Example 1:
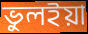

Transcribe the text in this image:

ভুলইয়া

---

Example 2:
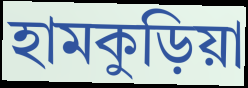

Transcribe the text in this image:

হামকুড়িয়া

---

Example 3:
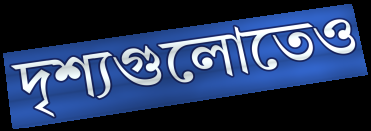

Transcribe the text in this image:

দৃশ্যগুলোতেও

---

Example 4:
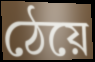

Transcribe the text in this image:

ঠেয়ে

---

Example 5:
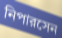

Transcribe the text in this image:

নিপারসেন